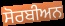
ਸੋਰਬੀਅਨ